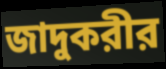
জাদুকরীর